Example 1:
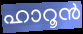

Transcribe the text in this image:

ഹാറൂൻ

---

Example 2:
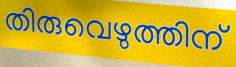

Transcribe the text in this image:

തിരുവെഴുത്തിന്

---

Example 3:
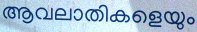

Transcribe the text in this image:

ആവലാതികളെയും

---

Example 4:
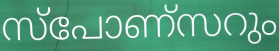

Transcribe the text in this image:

സ്പോണ്സറും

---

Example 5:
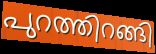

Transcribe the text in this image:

പുറത്തിറങ്ങി